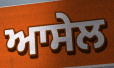
ਆਸੇਲ